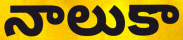
నాలుకా